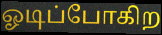
ஓடிப்போகிற